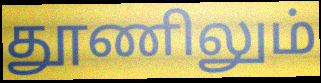
தூணிலும்